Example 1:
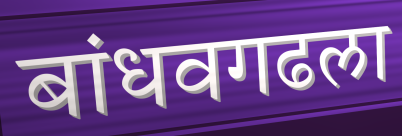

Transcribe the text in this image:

बांधवगढला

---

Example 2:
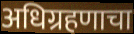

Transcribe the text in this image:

अधिग्रहणाचा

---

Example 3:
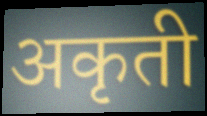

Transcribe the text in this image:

अकृती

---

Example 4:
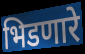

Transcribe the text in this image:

भिडणारे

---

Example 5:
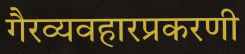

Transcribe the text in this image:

गैरव्यवहारप्रकरणी